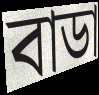
বাডা